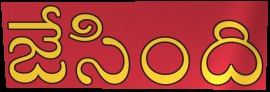
జేసింది